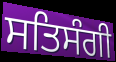
ਸਤਿਸੰਗੀ